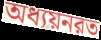
অধ্যয়নরত